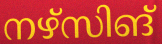
നഴ്സിങ്